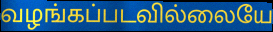
வழங்கப்படவில்லையே